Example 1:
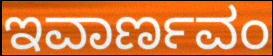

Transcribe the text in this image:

ಇವಾರ್ಣವಂ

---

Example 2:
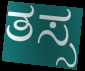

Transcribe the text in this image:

ತಸ್ಸ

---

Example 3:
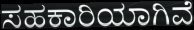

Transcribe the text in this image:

ಸಹಕಾರಿಯಾಗಿವೆ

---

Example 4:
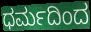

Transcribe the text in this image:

ಧರ್ಮದಿಂದ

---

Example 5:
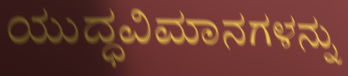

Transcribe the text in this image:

ಯುದ್ಧವಿಮಾನಗಳನ್ನು